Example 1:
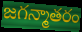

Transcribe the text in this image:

జగన్మాతరం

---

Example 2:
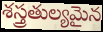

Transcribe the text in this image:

శస్త్రతుల్యమైన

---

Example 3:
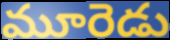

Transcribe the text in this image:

మూరెడు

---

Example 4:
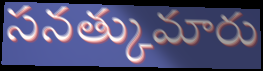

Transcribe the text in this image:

సనత్కుమారు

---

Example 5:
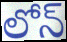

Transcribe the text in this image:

లోన్